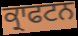
ਕ੍ਰਾਫਟਨ